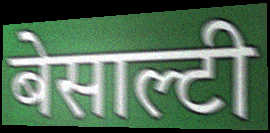
बेसाल्टी